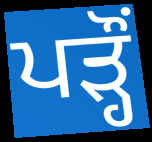
ਪੜ੍ਹੌਂ